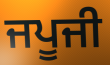
ਜਪੂਜੀ